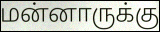
மன்னாருக்கு